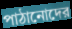
পাঠানোদের